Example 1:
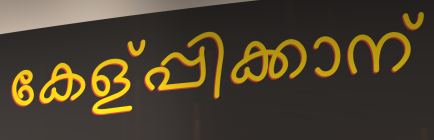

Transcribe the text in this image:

കേള്പ്പിക്കാന്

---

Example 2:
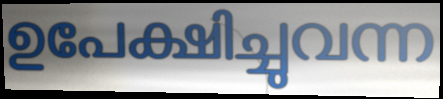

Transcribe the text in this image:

ഉപേക്ഷിച്ചുവന്ന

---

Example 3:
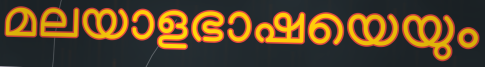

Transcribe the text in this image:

മലയാളഭാഷയെയും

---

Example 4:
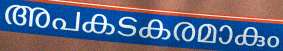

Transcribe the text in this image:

അപകടകരമാകും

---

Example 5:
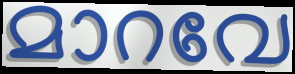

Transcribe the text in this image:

മാറവേ